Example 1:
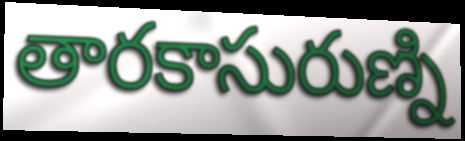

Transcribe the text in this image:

తారకాసురుణ్ని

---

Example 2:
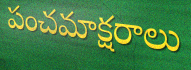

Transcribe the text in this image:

పంచమాక్షరాలు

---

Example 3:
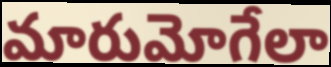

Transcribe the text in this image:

మారుమోగేలా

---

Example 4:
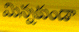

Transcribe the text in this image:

మిన్నకుండా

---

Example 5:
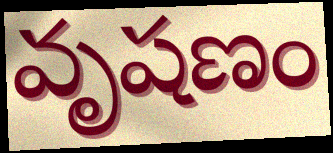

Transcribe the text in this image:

వృషణం